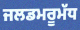
ਜਲਡਮਰੂਮੱਧ